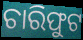
ଚାରିଫୁଟ